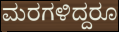
ಮರಗಳಿದ್ದರೂ